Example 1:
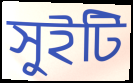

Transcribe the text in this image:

সুইটি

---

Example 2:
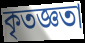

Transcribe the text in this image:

কৃতজ্ঞতা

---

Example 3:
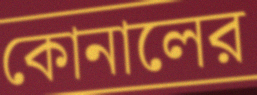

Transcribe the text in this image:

কোনালের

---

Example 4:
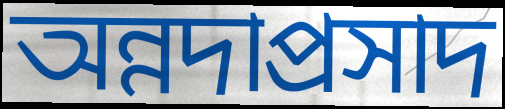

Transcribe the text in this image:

অন্নদাপ্রসাদ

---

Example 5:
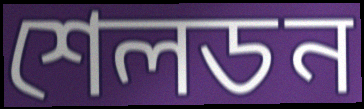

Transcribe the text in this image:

শেলডন